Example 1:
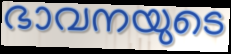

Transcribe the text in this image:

ഭാവനയുടെ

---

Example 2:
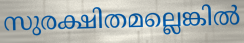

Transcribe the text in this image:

സുരക്ഷിതമല്ലെങ്കിൽ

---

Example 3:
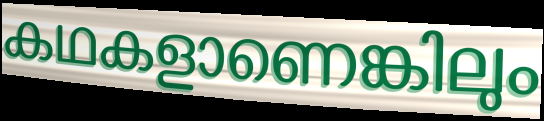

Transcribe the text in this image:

കഥകളാണെങ്കിലും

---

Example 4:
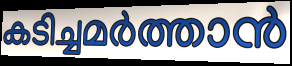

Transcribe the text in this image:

കടിച്ചമർത്താൻ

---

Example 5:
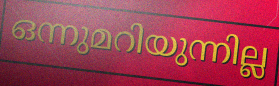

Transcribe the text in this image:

ഒന്നുമറിയുന്നില്ല